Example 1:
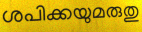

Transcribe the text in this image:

ശപിക്കയുമരുതു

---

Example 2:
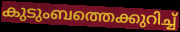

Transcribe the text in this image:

കുടുംബത്തെക്കുറിച്ച്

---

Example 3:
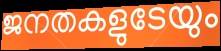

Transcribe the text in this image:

ജനതകളുടേയും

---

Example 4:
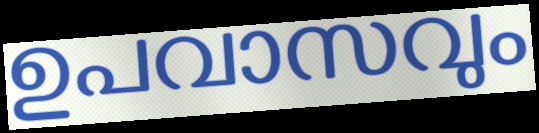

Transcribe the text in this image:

ഉപവാസവും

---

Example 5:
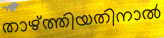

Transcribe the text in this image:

താഴ്ത്തിയതിനാൽ